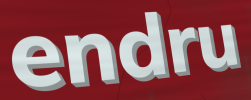
endru